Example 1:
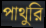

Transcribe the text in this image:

পাথুরি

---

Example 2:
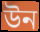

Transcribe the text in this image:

উন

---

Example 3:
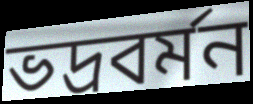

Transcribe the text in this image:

ভদ্রবর্মন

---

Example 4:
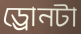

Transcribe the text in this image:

ড্রোনটা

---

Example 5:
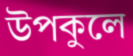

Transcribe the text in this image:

উপকুলে